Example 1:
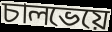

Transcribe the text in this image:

চালভেয়ে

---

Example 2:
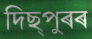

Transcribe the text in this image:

দিছ্পুৰৰ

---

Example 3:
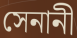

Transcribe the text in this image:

সেনানী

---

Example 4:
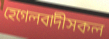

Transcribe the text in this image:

হেগেলবাদীসকল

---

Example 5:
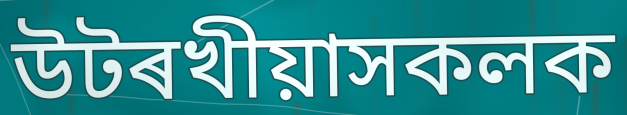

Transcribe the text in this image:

উটৰখীয়াসকলক